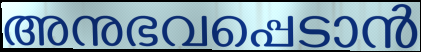
അനുഭവപ്പെടാൻ